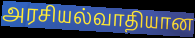
அரசியல்வாதியான